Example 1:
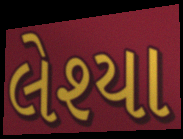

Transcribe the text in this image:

લેશ્યા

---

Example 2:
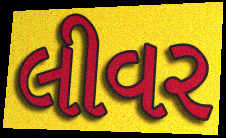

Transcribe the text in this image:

લીવર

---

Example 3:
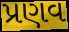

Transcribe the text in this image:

પ્રણવ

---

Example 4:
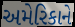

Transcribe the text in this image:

અમેરિકાને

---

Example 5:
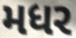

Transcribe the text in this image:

મધર